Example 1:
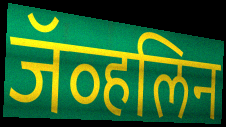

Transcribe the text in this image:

जॅव्हलिन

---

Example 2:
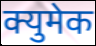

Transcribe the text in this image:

क्युमेक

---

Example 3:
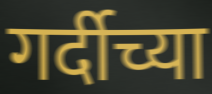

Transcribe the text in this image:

गर्दीच्या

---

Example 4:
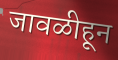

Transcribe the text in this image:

जावळीहून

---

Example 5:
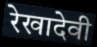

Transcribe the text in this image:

रेखादेवी